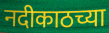
नदीकाठच्या